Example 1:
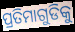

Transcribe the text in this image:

ପ୍ରତିମାଗୁଡିକୁ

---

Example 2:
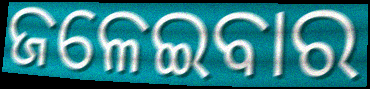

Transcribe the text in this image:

ଜଳେଇବାର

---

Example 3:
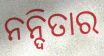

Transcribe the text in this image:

ନନ୍ଦିତାର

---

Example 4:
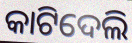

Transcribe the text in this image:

କାଟିଦେଲି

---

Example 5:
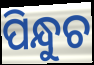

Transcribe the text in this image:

ପିନ୍ଧୁଚ